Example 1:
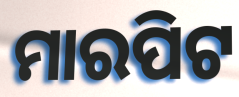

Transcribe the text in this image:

ମାରପିଟ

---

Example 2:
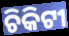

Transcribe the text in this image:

ଚିକିଟୀ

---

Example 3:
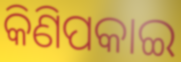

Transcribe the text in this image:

କିଣିପକାଇ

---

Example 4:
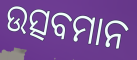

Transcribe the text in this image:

ଉତ୍ସବମାନ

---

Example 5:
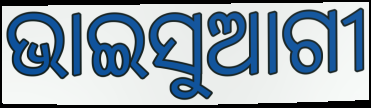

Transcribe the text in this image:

ଭାଇସୁଆଗୀ